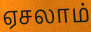
ஏசலாம்